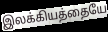
இலக்கியத்தையே